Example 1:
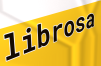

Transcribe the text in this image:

librosa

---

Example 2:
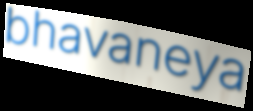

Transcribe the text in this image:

bhavaneya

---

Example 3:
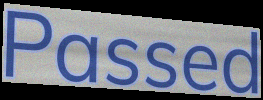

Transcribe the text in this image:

Passed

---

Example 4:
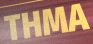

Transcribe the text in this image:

THMA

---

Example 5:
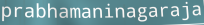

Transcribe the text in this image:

prabhamaninagaraja